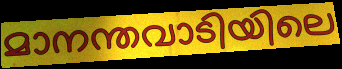
മാനന്തവാടിയിലെ